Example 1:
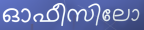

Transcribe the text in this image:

ഓഫീസിലോ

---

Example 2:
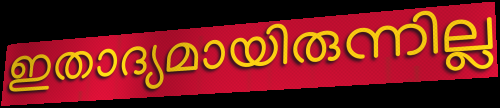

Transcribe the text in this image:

ഇതാദ്യമായിരുന്നില്ല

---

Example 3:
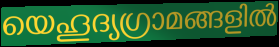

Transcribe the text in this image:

യെഹൂദ്യഗ്രാമങ്ങളിൽ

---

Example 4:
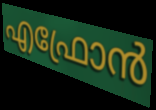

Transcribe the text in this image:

എഫ്രോൻ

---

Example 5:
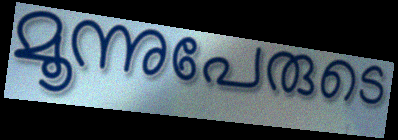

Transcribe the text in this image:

മൂന്നുപേരുടെ